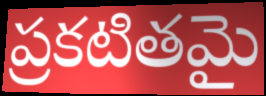
ప్రకటితమై